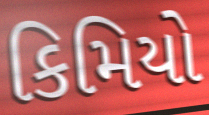
કિમિયો